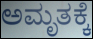
ಅಮೃತಕ್ಕೆ